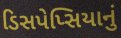
ડિસપેપ્સિયાનું